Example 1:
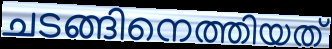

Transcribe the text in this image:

ചടങ്ങിനെത്തിയത്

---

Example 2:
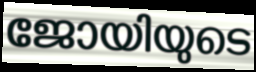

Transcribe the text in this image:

ജോയിയുടെ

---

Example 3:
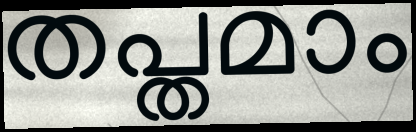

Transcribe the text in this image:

തപ്തമാം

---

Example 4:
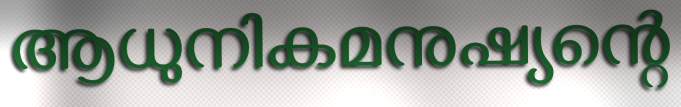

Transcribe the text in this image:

ആധുനികമനുഷ്യന്റെ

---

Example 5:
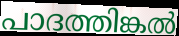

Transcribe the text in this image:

പാദത്തിങ്കൽ